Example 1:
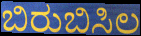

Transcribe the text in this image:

ಬಿರುಬಿಸಿಲ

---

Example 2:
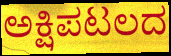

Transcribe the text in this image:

ಅಕ್ಷಿಪಟಲದ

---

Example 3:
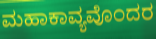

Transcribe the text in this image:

ಮಹಾಕಾವ್ಯವೊಂದರ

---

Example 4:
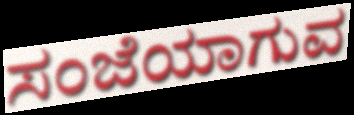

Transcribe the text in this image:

ಸಂಜೆಯಾಗುವ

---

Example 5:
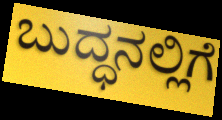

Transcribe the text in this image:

ಬುದ್ಧನಲ್ಲಿಗೆ